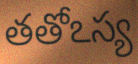
తతోఽస్య